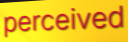
perceived